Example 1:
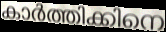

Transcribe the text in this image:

കാർത്തിക്കിനെ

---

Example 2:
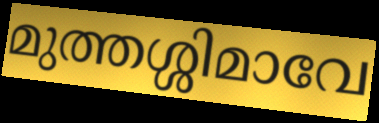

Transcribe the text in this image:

മുത്തശ്ശിമാവേ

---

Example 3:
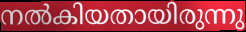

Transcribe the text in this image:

നൽകിയതായിരുന്നു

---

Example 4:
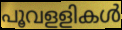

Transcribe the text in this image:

പൂവളളികൾ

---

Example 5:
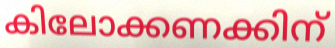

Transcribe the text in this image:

കിലോക്കണക്കിന്